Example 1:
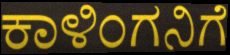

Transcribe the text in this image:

ಕಾಳಿಂಗನಿಗೆ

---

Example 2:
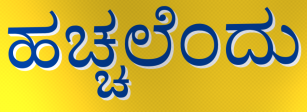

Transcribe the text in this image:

ಹಚ್ಚಲೆಂದು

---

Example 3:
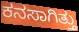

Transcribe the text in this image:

ಕನಸಾಗಿತ್ತು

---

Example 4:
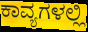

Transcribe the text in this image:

ಕಾವ್ಯಗಳಲ್ಲಿ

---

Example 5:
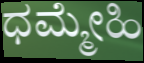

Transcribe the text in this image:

ಧಮ್ಮೇಹಿ